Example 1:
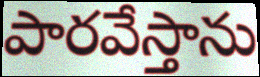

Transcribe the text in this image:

పారవేస్తాను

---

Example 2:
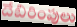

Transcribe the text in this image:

దేబిరింపులు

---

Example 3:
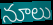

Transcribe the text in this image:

నూలు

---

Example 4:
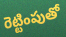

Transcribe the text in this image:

రెట్టింపుతో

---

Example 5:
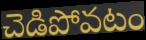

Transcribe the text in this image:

చెడిపోవటం